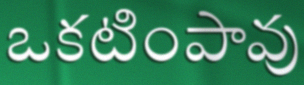
ఒకటింపావు